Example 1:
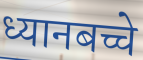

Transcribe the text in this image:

ध्यानबच्चे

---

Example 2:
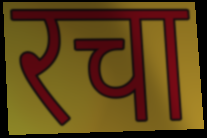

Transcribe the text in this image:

रचा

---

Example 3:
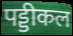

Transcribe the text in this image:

पड्डीकल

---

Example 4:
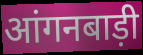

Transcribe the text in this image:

आंगनबाड़ी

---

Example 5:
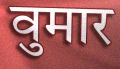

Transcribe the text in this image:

वुमार